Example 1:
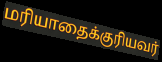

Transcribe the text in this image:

மரியாதைக்குரியவர்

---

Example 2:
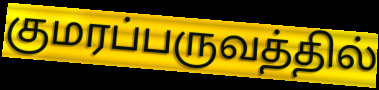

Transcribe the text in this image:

குமரப்பருவத்தில்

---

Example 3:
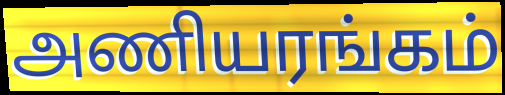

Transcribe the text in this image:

அணியரங்கம்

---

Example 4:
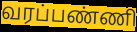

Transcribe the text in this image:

வரப்பண்ணி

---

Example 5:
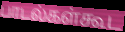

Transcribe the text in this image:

பாடல்கள்கூட